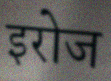
इरोज